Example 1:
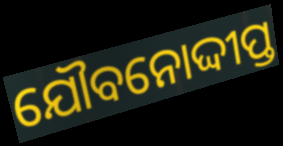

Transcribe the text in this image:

ଯୌବନୋଦ୍ଦୀପ୍ତ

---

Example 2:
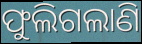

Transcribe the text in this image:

ଫୁଲିଗଲାଣି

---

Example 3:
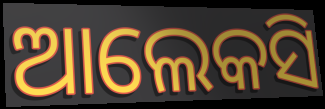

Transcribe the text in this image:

ଆଲେକସି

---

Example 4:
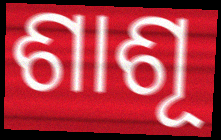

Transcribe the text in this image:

ଶାଶୂ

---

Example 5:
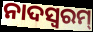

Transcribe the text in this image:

ନାଦସ୍ଵରମ୍